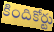
కిందికోర్టు